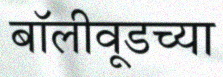
बॉलीवूडच्या